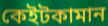
কেইটকামান